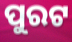
ପୁରଟ